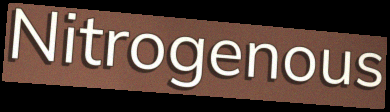
Nitrogenous